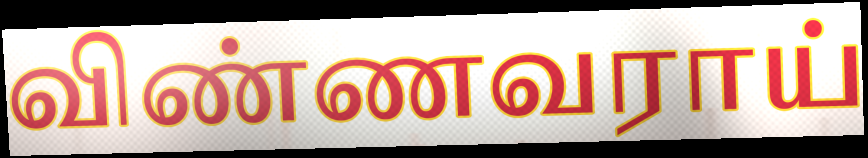
விண்ணவராய்